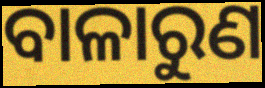
ବାଳାରୁଣ